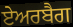
ਏਅਰਬੈਗ